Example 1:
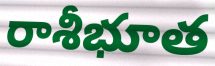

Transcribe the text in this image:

రాశీభూత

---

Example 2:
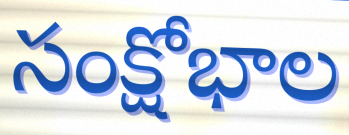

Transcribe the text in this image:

సంక్షోభాల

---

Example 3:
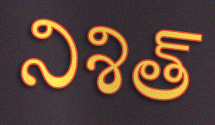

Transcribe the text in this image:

నిశిత్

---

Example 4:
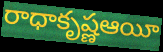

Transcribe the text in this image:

రాధాకృష్ణఆయీ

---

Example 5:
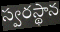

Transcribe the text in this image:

స్వరస్థాన